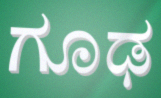
ಗೂಢ